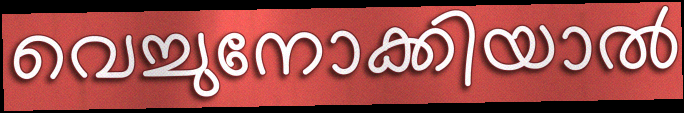
വെച്ചുനോക്കിയാൽ